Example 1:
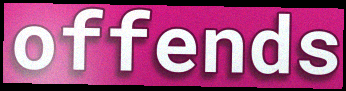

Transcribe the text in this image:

offends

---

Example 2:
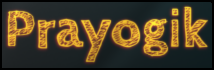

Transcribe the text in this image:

Prayogik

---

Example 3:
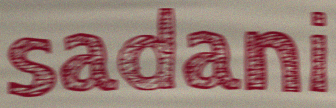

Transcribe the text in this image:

sadani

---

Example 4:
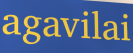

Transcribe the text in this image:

agavilai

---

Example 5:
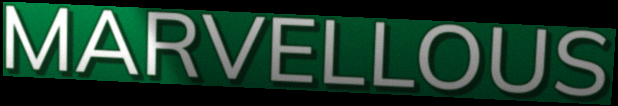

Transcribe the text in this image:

MARVELLOUS